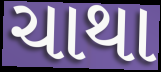
ચાથા